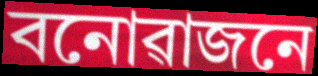
বনোৱাজনে